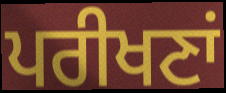
ਪਰੀਖਣਾਂ